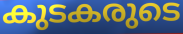
കുടകരുടെ